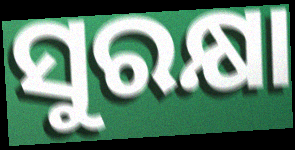
ସୁରକ୍ଷା